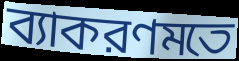
ব্যাকরণমতে